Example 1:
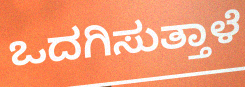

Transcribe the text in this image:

ಒದಗಿಸುತ್ತಾಳೆ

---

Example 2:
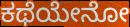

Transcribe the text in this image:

ಕಥೆಯೇನೋ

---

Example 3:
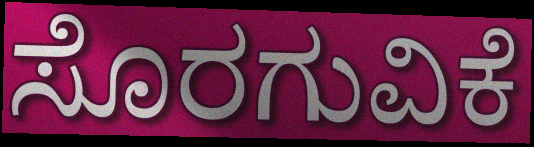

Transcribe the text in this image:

ಸೊರಗುವಿಕೆ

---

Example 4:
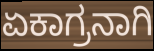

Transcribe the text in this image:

ಏಕಾಗ್ರನಾಗಿ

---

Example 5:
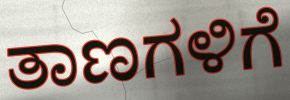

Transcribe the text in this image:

ತಾಣಗಳಿಗೆ